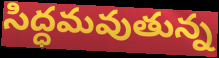
సిద్ధమవుతున్న